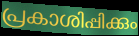
പ്രകാശിപ്പിക്കും